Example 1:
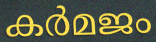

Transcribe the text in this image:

കർമജം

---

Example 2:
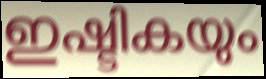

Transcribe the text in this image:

ഇഷ്ടികയും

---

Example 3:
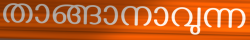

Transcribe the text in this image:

താങ്ങാനാവുന്ന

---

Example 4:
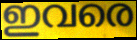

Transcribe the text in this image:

ഇവരെ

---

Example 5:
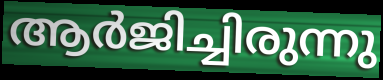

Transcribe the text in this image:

ആർജിച്ചിരുന്നു